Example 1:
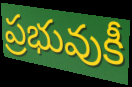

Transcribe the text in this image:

ప్రభువుకీ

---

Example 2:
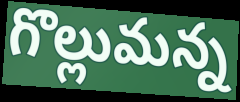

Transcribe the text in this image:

గొల్లుమన్న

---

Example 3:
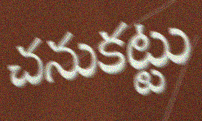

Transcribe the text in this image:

చనుకట్టు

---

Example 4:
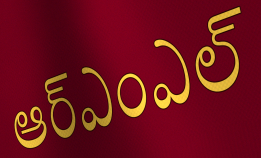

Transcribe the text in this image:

ఆర్ఎంఎల్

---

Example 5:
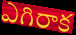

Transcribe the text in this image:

ఎగిరాక